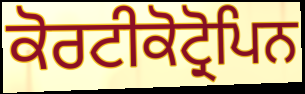
ਕੋਰਟੀਕੋਟ੍ਰੋਪਿਨ